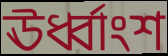
ঊর্ধ্বাংশ